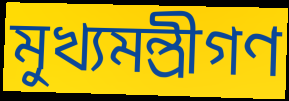
মুখ্যমন্ত্রীগণ